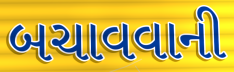
બચાવવાની